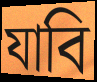
যাবি